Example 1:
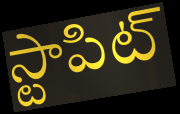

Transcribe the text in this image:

స్టాపిట్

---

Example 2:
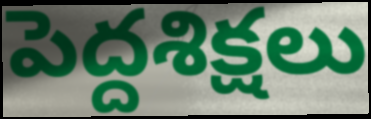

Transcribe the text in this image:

పెద్దశిక్షలు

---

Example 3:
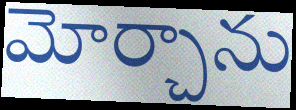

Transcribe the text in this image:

మోర్చాను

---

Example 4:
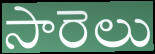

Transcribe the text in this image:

సారెలు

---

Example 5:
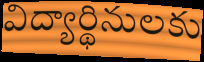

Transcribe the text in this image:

విద్యార్థినులకు